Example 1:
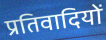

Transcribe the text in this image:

प्रतिवादियों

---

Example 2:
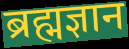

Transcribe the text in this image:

ब्रह्मज्ञान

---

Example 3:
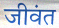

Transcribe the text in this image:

जीवंत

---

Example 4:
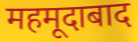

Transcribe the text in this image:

महमूदाबाद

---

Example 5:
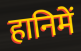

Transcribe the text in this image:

हानिमें